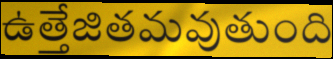
ఉత్తేజితమవుతుంది